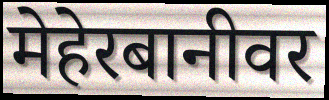
मेहेरबानीवर